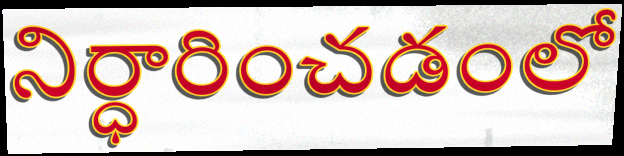
నిర్ధారించడంలో